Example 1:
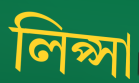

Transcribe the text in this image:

লিপ্সা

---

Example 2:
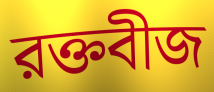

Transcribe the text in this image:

রক্তবীজ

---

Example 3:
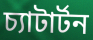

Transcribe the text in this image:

চ্যাটার্টন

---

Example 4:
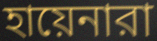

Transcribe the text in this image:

হায়েনারা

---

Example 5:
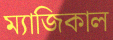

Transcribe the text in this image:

ম্যাজিকাল